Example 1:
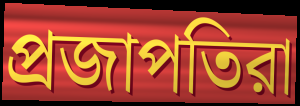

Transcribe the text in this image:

প্রজাপতিরা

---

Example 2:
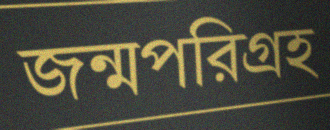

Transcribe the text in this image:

জন্মপরিগ্রহ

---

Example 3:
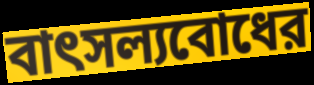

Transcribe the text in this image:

বাৎসল্যবোধের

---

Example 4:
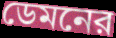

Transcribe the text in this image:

ডেমনের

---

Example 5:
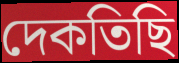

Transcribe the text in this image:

দেকতিছি